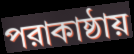
পরাকাষ্ঠায়